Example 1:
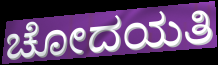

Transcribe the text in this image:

ಚೋದಯತಿ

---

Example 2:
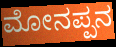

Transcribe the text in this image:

ಮೋನಪ್ಪನ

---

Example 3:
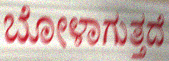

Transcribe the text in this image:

ಬೋಳಾಗುತ್ತದೆ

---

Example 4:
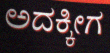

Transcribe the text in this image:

ಅದಕ್ಕೀಗ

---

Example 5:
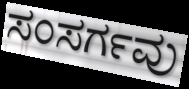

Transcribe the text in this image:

ಸಂಸರ್ಗವು